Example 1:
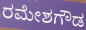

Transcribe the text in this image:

ರಮೇಶಗೌಡ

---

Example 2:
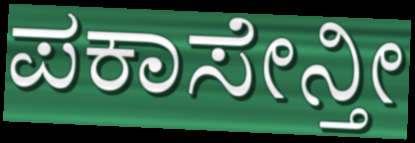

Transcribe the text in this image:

ಪಕಾಸೇನ್ತೀ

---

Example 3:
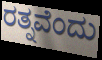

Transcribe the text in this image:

ರತ್ನವೆಂದು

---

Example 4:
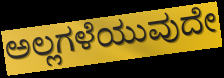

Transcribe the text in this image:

ಅಲ್ಲಗಳೆಯುವುದೇ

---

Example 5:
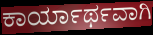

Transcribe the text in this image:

ಕಾರ್ಯಾರ್ಥವಾಗಿ